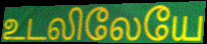
உடலிலேயே